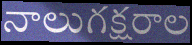
నాలుగక్షరాల